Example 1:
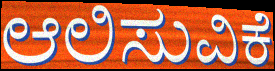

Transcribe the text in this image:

ಆಲಿಸುವಿಕೆ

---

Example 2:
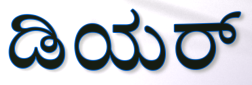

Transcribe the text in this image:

ಡಿಯರ್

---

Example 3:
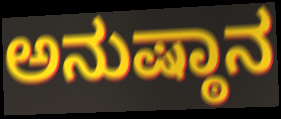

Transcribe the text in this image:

ಅನುಷ್ಠಾನ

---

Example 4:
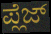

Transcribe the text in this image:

ಪ್ಲೆಜ್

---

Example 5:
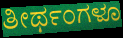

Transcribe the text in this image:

ತೀರ್ಥಂಗಳೂ